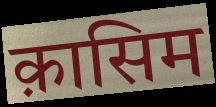
क़ासिम